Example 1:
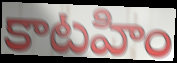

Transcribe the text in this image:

కాటహిం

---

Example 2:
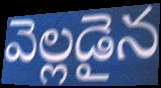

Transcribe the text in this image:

వెల్లడైన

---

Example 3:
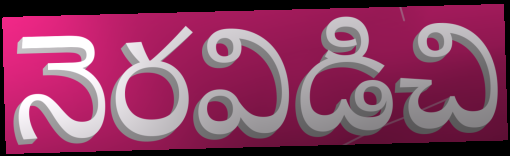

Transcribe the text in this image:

నెరవిడిచి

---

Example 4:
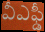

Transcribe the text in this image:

వీఎఫ్డీ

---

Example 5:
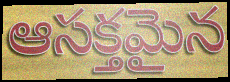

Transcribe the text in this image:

ఆసక్తమైన